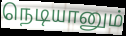
நெடியானும்